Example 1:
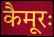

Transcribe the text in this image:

कैमूरः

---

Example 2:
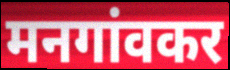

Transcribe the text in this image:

मनगांवकर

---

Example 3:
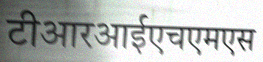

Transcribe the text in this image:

टीआरआईएचएमएस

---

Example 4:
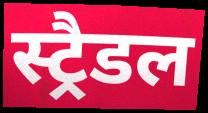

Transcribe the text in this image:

स्ट्रैडल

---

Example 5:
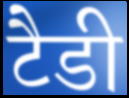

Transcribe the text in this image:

टैडी